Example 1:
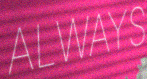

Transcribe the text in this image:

ALWAYS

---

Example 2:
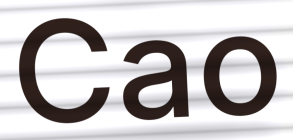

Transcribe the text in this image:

Cao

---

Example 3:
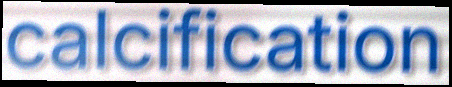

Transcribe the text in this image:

calcification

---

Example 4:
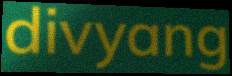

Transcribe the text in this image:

divyang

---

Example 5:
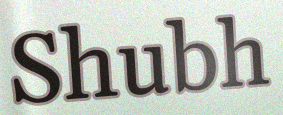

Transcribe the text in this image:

Shubh